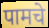
पामचे